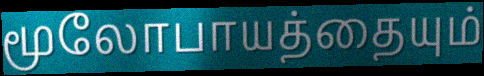
மூலோபாயத்தையும்